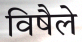
विषैले